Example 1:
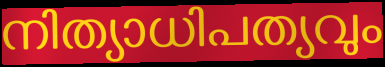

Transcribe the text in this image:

നിത്യാധിപത്യവും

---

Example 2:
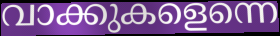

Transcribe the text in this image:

വാക്കുകളെന്നെ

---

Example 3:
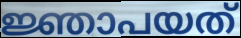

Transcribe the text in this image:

ജ്ഞാപയത്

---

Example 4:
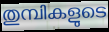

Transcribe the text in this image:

തുമ്പികളുടെ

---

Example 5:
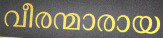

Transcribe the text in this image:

വീരന്മാരായ